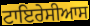
ਟਾਇਰੇਸੀਆਸ